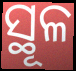
ସ୍ଥୂଳ